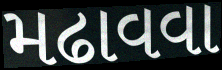
મઢાવવા